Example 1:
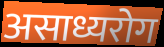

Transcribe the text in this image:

असाध्यरोग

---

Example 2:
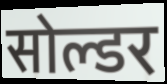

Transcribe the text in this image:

सोल्डर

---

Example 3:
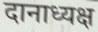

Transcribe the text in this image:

दानाध्यक्ष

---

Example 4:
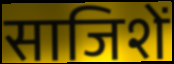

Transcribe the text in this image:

साजिशें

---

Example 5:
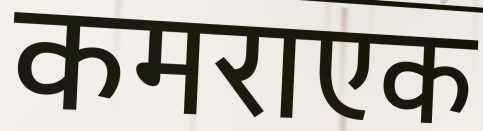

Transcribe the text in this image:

कमराएक